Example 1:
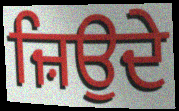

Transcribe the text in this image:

ਜ਼ਿਉਦੇ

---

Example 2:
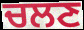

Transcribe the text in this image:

ਚਲਣ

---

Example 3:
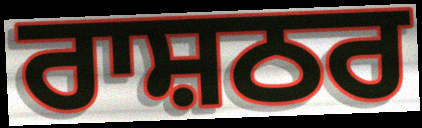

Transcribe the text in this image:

ਰਾਸ਼ਠਰ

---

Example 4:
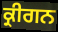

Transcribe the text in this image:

ਕ੍ਰੀਗਨ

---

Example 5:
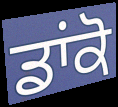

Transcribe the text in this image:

ਡਾਂਕੋ